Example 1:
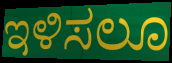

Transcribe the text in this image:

ಇಳಿಸಲೂ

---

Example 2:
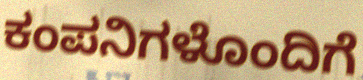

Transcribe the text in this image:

ಕಂಪನಿಗಳೊಂದಿಗೆ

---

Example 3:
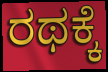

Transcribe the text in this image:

ರಥಕ್ಕೆ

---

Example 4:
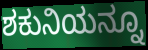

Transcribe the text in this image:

ಶಕುನಿಯನ್ನೂ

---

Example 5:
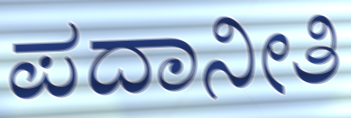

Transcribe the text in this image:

ಪದಾನೀತಿ